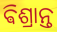
ଵିଶ୍ରାନ୍ତ